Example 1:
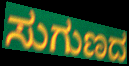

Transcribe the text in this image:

ಸುಗುಣದ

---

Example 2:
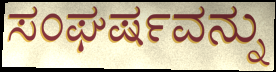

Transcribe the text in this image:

ಸಂಘರ್ಷವನ್ನು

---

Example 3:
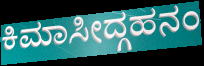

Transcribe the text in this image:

ಕಿಮಾಸೀದ್ಗಹನಂ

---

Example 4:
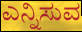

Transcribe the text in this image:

ಎನ್ನಿಸುವ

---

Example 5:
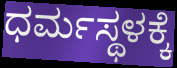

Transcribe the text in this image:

ಧರ್ಮಸ್ಥಳಕ್ಕೆ